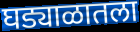
घड्याळातला